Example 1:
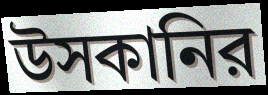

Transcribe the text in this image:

উসকানির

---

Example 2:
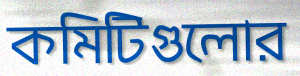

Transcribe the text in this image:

কমিটিগুলোর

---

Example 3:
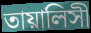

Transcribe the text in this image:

তায়ালিসী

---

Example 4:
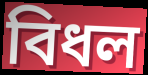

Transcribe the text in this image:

বিধল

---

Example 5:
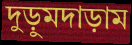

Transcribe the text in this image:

দুড়ুমদাড়াম